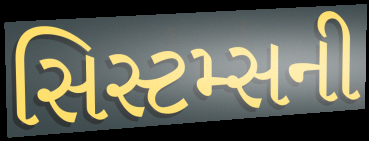
સિસ્ટમ્સની